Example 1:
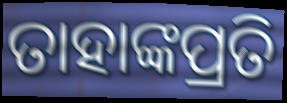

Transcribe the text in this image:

ତାହାଙ୍କପ୍ରତି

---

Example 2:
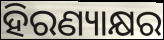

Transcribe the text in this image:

ହିରଣ୍ୟାକ୍ଷର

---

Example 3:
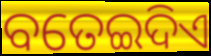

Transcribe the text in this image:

ବତେଇଦିଏ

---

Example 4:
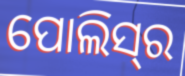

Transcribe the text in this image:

ପୋଲିସ୍‍ର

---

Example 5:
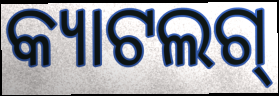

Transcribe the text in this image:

କ୍ୟାଟଲଗ୍